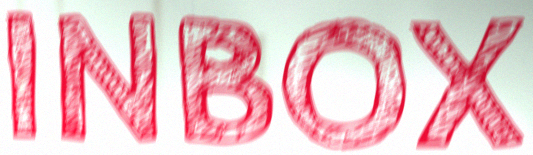
INBOX